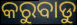
କରୁବାଡୁ